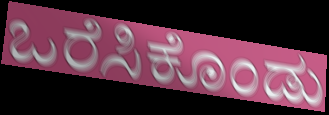
ಒರೆಸಿಕೊಂಡು